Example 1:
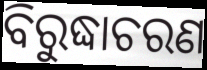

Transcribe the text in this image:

ବିରୁଦ୍ଧାଚରଣ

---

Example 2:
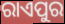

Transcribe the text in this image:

ରାଏପୁର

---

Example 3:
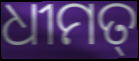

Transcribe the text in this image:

ଧୀମତ୍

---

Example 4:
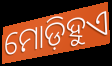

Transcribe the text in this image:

ମୋଡ଼ିହୁଏ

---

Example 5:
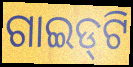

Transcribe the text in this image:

ଗାଇଡ୍‌ଟି